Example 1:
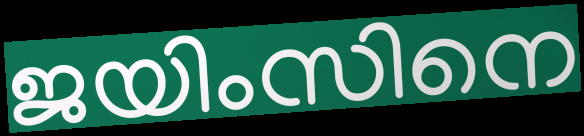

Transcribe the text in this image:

ജയിംസിനെ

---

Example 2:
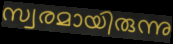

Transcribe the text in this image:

സ്വരമായിരുന്നു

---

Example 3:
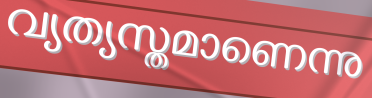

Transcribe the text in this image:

വ്യത്യസ്തമാണെന്നു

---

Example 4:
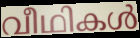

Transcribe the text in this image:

വീഥികൾ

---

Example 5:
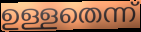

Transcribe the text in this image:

ഉള്ളതെന്ന്